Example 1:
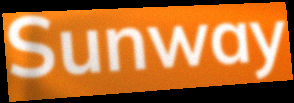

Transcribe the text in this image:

Sunway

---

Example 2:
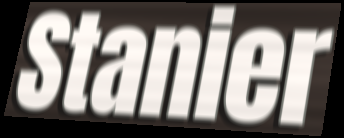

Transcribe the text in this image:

Stanier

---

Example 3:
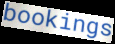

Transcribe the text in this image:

bookings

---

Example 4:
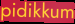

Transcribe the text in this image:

pidikkum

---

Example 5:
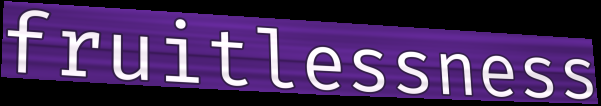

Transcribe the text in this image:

fruitlessness